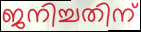
ജനിച്ചതിന്